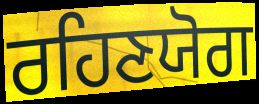
ਰਹਿਣਯੋਗ